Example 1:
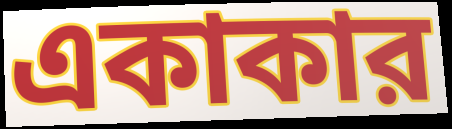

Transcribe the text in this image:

একাকার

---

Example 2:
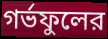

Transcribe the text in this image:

গর্ভফুলের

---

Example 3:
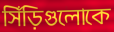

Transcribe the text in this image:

সিঁড়িগুলোকে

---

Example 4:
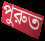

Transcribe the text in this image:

পুরুত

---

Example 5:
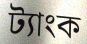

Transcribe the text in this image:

ট্যাংক